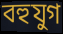
বহুযুগ